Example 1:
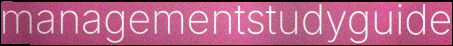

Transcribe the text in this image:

managementstudyguide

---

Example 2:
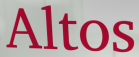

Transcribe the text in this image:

Altos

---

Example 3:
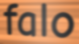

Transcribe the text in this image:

falo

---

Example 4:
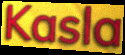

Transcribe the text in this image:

Kasla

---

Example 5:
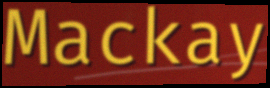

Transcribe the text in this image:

Mackay